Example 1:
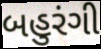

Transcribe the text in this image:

બહુરંગી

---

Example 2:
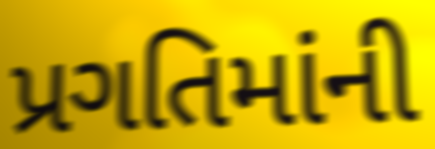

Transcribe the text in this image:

પ્રગતિમાંની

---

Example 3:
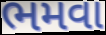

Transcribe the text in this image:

ભમવા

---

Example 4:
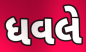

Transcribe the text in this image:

ધવલે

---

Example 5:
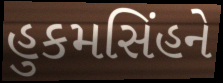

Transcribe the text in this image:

હુકમસિંહને